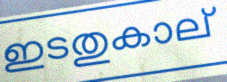
ഇടതുകാല്